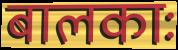
बालकाः